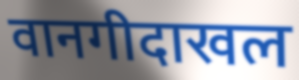
वानगीदाखल